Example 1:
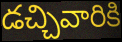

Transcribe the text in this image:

డచ్చివారికి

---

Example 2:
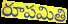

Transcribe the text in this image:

రూపమితి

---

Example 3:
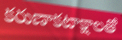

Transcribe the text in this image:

కరుణాకటాక్షాలతో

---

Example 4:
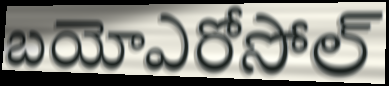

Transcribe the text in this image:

బయోఎరోసోల్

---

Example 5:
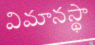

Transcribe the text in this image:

విమానస్థా